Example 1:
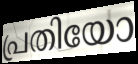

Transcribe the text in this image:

പ്രതിയോ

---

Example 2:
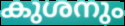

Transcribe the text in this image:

കുശനും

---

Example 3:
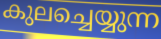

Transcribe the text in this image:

കുലച്ചെയ്യുന്ന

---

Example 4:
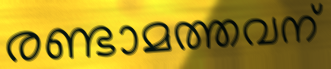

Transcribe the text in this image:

രണ്ടാമത്തവന്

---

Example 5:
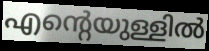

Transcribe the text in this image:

എന്റെയുള്ളിൽ